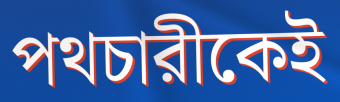
পথচারীকেই